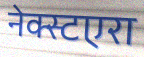
नेक्स्टएरा